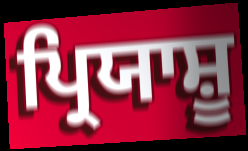
ਪ੍ਰਿਯਾਸ਼ੂ